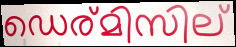
ഡെര്മിസില്